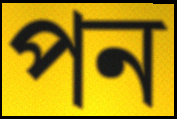
পন